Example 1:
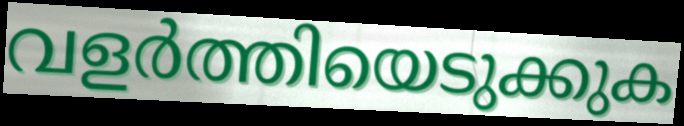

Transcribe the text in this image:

വളർത്തിയെടുക്കുക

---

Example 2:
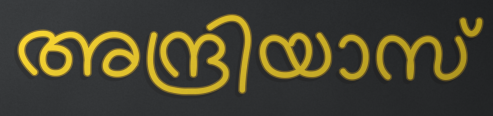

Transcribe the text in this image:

അന്ദ്രിയാസ്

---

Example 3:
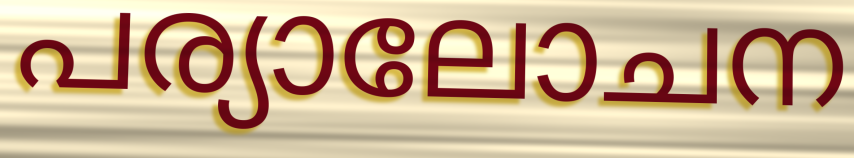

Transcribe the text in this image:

പര്യാലോചന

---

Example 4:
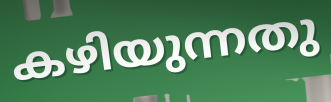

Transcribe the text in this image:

കഴിയുന്നതു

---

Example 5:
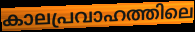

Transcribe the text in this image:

കാലപ്രവാഹത്തിലെ